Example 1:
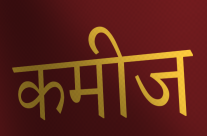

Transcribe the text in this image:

कमीज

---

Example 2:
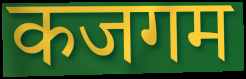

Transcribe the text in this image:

कजगम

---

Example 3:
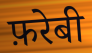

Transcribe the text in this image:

फ़रेबी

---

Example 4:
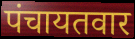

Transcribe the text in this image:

पंचायतवार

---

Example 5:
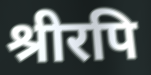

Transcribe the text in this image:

श्रीरपि